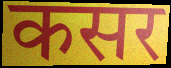
कसर